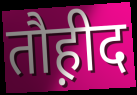
तौह़ीद